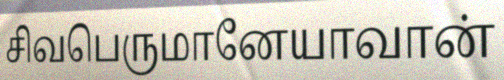
சிவபெருமானேயாவான்